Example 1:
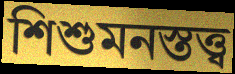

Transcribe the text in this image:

শিশুমনস্তত্ত্ব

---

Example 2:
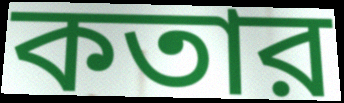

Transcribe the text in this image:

কতার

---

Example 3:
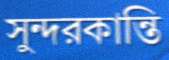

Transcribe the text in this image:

সুন্দরকান্তি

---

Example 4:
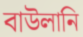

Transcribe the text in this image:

বাউলানি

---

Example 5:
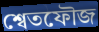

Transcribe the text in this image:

শ্বেতফৌজ